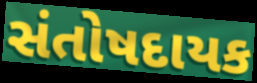
સંતોષદાયક